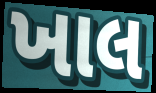
ખાલ